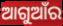
ଆଗୁଆଁର